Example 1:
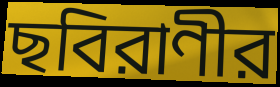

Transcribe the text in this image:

ছবিরাণীর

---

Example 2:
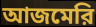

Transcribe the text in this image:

আজমেরি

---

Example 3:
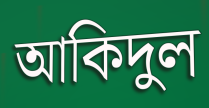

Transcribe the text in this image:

আকিদুল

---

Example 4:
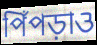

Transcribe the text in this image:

পিঁপড়াও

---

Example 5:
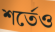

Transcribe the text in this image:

শর্তেও